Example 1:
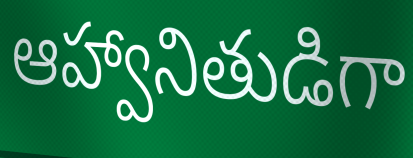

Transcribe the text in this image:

ఆహ్వానితుడిగా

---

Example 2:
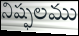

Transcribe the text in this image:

నిష్ఫలము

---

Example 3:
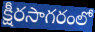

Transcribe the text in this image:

క్షీరసాగరంలో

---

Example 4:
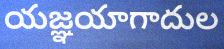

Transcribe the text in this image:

యజ్ఞయాగాదుల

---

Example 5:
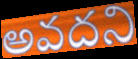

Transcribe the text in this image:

అవదని